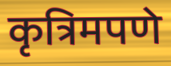
कृत्रिमपणे